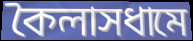
কৈলাসধামে